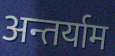
अन्तर्याम